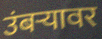
उंबर्‍यावर